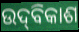
ଉଦ୍‌ବିକାଶ